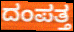
ದಂಪತ್ತ